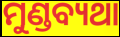
ମୁଣ୍ଡବ୍ୟଥା